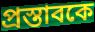
প্রস্তাবকে